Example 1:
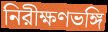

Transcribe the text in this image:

নিরীক্ষণভঙ্গি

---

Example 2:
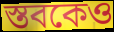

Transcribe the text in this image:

স্তবকেও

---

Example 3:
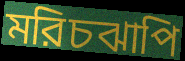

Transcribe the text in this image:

মরিচঝাপি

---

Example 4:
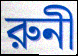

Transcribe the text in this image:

রুনী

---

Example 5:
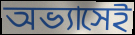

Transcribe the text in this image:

অভ্যাসেই